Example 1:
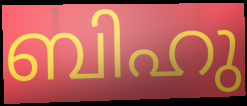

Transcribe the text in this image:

ബിഹു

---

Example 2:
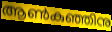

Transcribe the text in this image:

ആൺകുഞ്ഞിനു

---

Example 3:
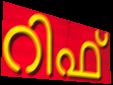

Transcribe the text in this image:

റിഫ്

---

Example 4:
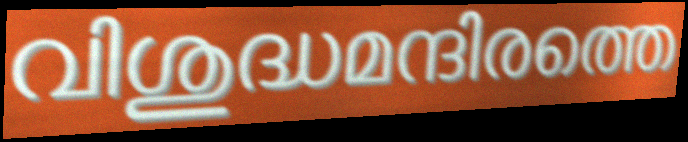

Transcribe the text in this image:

വിശുദ്ധമന്ദിരത്തെ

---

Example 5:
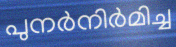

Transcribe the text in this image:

പുനർനിർമിച്ച